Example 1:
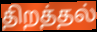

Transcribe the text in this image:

திறத்தல்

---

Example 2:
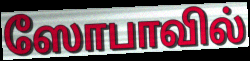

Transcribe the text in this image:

ஸோபாவில்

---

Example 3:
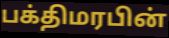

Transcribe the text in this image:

பக்திமரபின்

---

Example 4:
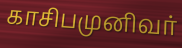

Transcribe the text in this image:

காசிபமுனிவர்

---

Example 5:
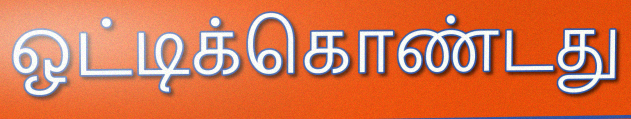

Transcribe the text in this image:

ஒட்டிக்கொண்டது